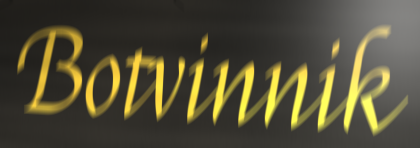
Botvinnik